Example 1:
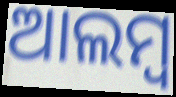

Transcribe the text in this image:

ଆଲମ୍ବ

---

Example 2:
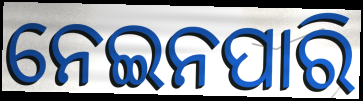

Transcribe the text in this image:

ନେଇନପାରି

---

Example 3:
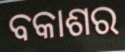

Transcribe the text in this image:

ବକାଶର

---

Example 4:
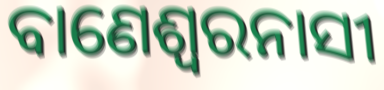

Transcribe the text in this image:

ବାଣେଶ୍ୱରନାସୀ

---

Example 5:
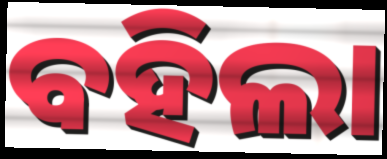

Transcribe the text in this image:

ବହିଲା